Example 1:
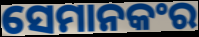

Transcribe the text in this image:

ସେମାନକଂର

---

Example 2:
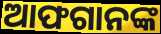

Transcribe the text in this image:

ଆଫଗାନଙ୍କ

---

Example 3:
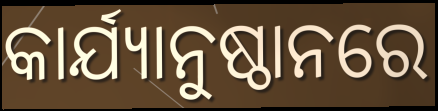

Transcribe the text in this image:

କାର୍ଯ୍ୟାନୁଷ୍ଠାନରେ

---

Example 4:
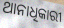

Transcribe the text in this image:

ଥାନାଧିକାରୀ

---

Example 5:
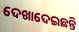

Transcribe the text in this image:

ଦେଖାଦେଇଛନ୍ତି